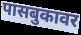
पासबुकावर